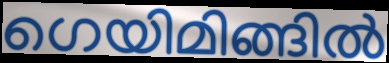
ഗെയിമിങ്ങിൽ